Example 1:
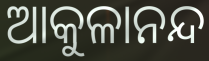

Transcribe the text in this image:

ଆକୁଳାନନ୍ଦ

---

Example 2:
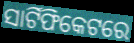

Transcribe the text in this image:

ସାର୍ଟିଫିକେଟରେ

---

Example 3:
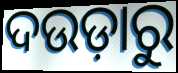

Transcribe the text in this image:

ଦଉଡ଼ାରୁ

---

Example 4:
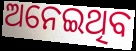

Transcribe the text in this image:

ଅନେଇଥିବ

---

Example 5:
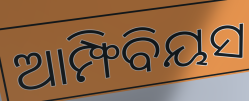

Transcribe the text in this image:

ଆମ୍ଫିବିୟସ